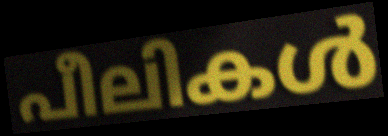
പീലികൾ